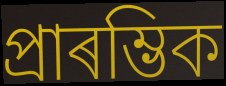
প্ৰাৰম্ভিক